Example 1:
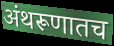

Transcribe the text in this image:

अंथरूणातच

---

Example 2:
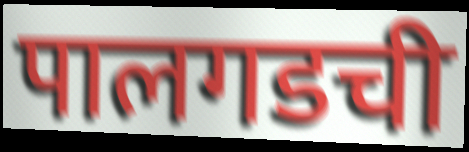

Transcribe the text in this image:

पालगडची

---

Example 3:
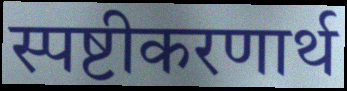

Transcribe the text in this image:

स्पष्टीकरणार्थ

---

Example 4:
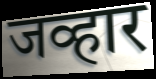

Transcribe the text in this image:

जव्हार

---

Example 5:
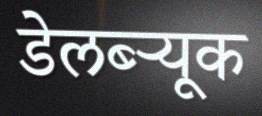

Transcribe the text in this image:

डेलब्ऱ्यूक